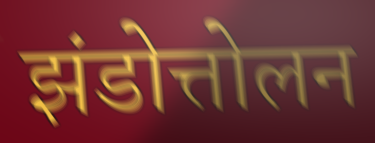
झंडोत्तोलन